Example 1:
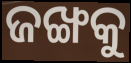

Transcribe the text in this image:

ଜଙ୍ଖକୁ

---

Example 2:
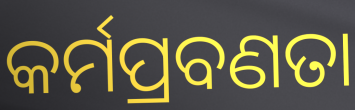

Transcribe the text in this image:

କର୍ମପ୍ରବଣତା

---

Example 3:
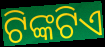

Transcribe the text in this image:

ଟିଙ୍କଟିଏ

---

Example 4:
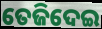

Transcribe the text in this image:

ତେଜିଦେଇ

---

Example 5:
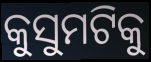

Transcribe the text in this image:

କୁସୁମଟିକୁ